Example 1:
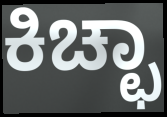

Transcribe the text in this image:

ಕಿಚ್ಛಾ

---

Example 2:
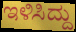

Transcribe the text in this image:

ಇಳಿಸಿದ್ದು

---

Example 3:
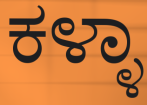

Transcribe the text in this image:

ಕಳ್ಳಾ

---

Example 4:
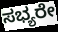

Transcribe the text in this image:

ಸಭ್ಯರೇ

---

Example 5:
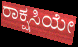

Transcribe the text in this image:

ರಾಕ್ಷಸಿಯೇ